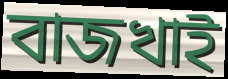
বাজখাই